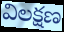
విలక్షణ